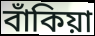
বাঁকিয়া